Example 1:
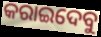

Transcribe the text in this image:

କରାଇଦେବୁ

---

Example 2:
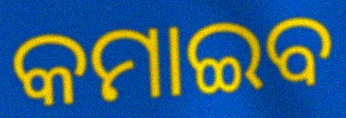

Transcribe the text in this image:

କମାଇବ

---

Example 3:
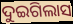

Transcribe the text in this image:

ଦୁଇଗିଲାସ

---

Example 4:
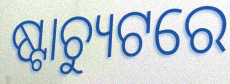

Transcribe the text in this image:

ଷ୍ଟାଚ୍ୟୁଟରେ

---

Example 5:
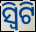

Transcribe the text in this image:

ସ୍ୱିଟି